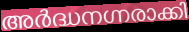
അർദ്ധനഗ്നരാക്കി